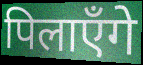
पिलाएँगे